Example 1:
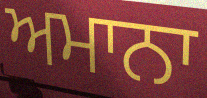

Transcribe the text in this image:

ਅਮਾਨਾ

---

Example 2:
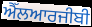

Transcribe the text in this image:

ਐੱਲਆਰਜੀਬੀ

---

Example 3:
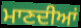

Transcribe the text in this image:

ਮਾਣਦੀਆਂ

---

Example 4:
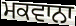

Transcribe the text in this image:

ਮਕਵਾਨਾ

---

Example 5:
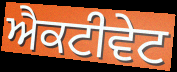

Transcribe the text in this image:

ਐਕਟੀਵੇਟ